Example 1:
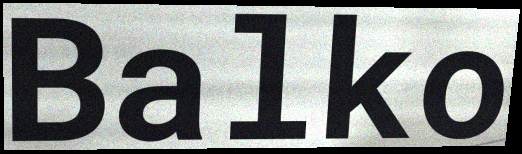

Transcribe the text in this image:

Balko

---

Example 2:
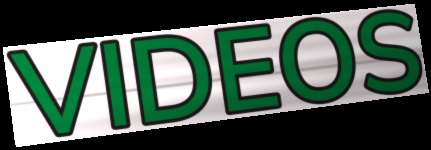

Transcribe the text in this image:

VIDEOS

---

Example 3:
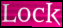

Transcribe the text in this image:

Lock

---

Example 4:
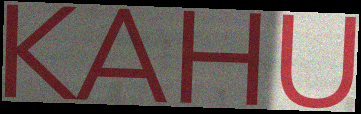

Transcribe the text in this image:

KAHU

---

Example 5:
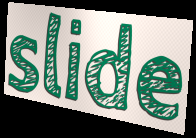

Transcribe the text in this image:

slide